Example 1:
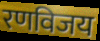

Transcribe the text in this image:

रणविजय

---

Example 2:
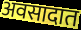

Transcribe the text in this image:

अवसादात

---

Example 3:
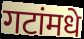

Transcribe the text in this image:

गटांमधे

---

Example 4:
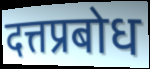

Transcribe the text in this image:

दत्तप्रबोध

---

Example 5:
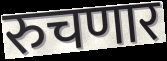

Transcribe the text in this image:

रुचणार